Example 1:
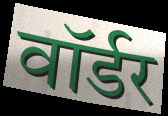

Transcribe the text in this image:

वॉर्डर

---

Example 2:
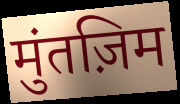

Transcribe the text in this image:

मुंतज़िम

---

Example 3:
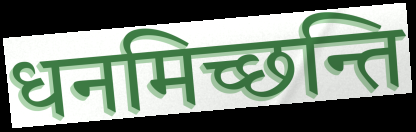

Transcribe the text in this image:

धनमिच्छन्ति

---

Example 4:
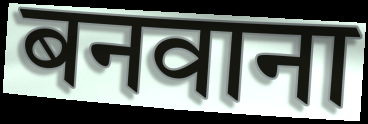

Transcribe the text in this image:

बनवाना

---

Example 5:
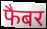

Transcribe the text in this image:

फैबर